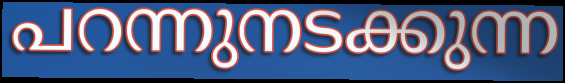
പറന്നുനടക്കുന്ന